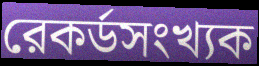
রেকর্ডসংখ্যক